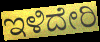
ಇಳಿದೇರಿ